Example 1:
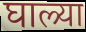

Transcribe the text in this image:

घाल्या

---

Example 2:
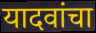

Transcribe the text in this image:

यादवांचा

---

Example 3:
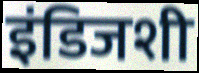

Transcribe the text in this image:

इंडिजशी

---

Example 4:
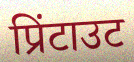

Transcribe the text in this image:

प्रिंटाउट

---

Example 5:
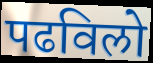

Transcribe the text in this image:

पढविलो